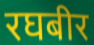
रघबीर